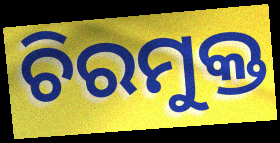
ଚିରମୁକ୍ତ